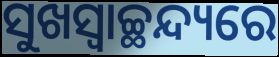
ସୁଖସ୍ଵାଚ୍ଛନ୍ଦ୍ୟରେ